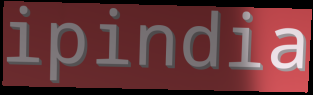
ipindia